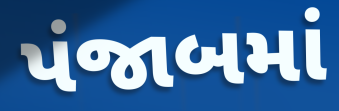
પંજાબમાં